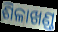
ଶିଳାଖଣ୍ଡ